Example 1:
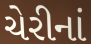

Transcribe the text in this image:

ચેરીનાં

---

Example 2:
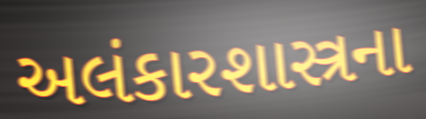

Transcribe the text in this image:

અલંકારશાસ્ત્રના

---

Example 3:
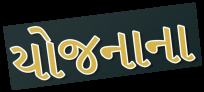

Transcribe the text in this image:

યોજનાના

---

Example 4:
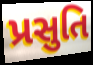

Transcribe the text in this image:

પ્રસુતિ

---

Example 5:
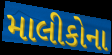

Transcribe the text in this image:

માલીકોના